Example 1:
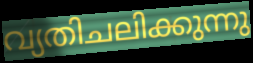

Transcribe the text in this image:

വ്യതിചലിക്കുന്നു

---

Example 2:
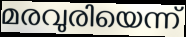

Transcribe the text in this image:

മരവുരിയെന്ന്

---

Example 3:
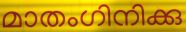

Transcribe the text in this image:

മാതംഗിനിക്കു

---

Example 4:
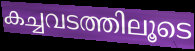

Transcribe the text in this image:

കച്ചവടത്തിലൂടെ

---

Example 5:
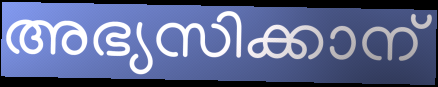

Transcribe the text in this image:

അഭ്യസിക്കാന്